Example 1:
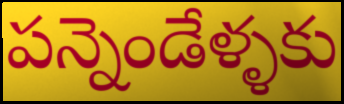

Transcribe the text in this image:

పన్నెండేళ్ళకు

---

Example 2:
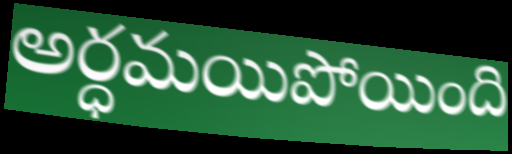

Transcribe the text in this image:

అర్ధమయిపోయింది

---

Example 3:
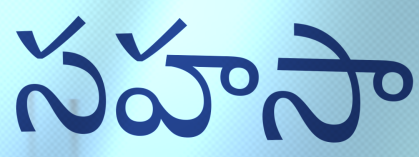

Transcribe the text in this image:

సహసా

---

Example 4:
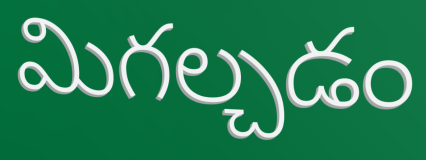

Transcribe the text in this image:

మిగల్చడం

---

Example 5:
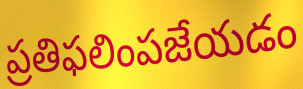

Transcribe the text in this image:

ప్రతిఫలింపజేయడం